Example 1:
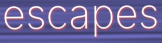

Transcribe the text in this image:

escapes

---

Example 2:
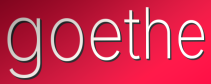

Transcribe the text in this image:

goethe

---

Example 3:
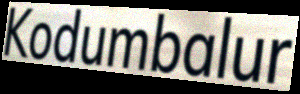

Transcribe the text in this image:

Kodumbalur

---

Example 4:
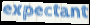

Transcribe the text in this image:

expectant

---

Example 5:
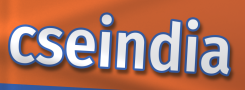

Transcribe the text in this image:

cseindia